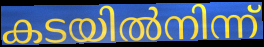
കടയിൽനിന്ന്